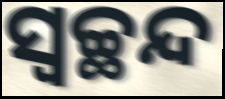
ସ୍ୱଚ୍ଛନ୍ଦ